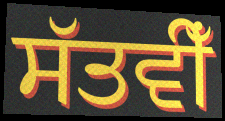
ਸੱਤਵੀਁ